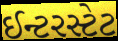
ઈન્ટરસ્ટેટ